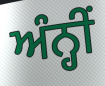
ਅੰਨ੍ਹੀਂ